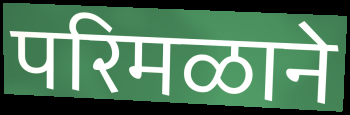
परिमळाने